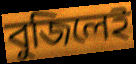
বুজিলেই